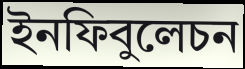
ইনফিবুলেচন